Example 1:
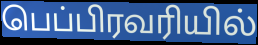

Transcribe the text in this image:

பெப்பிரவரியில்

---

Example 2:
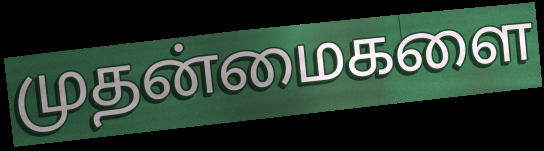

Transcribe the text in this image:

முதன்மைகளை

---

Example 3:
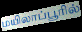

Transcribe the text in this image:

மயிலாப்பூரில்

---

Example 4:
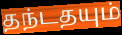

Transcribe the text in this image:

தந்டதயும்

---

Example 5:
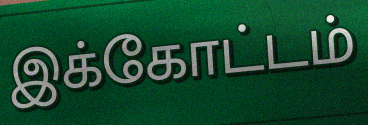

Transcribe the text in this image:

இக்கோட்டம்